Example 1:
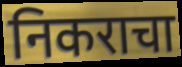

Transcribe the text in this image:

निकराचा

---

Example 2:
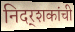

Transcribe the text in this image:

निदर्शकांची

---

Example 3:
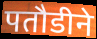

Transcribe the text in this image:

पतौडीने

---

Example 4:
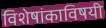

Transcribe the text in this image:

विशेषांकाविषयी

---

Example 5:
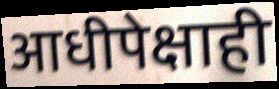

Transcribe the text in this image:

आधीपेक्षाही